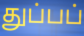
துப்பப்